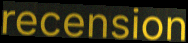
recension